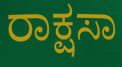
ರಾಕ್ಷಸಾ